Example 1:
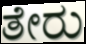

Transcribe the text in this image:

ತೇರು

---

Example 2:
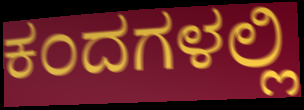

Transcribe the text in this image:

ಕಂದಗಳಲ್ಲಿ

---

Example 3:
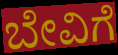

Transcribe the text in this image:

ಬೇವಿಗೆ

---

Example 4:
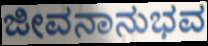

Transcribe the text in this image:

ಜೀವನಾನುಭವ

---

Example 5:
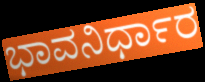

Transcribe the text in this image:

ಭಾವನಿರ್ಧಾರ